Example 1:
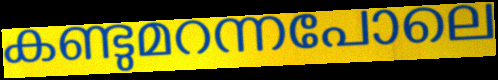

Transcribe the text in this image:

കണ്ടുമറന്നപോലെ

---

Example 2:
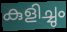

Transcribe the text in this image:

കുളിച്ചും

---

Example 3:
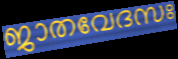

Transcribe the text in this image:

ജാതവേദസഃ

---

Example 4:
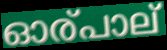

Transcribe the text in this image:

ഓര്പാല്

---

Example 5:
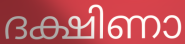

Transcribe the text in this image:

ദക്ഷിണാ